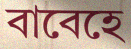
বাবেহে